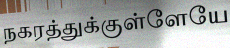
நகரத்துக்குள்ளேயே